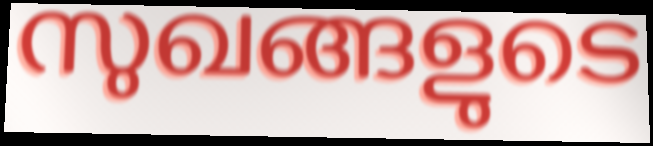
സുഖങ്ങളുടെ